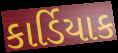
કાર્ડિયાક